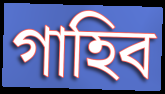
গাহিব